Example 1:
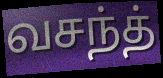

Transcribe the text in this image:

வசந்த்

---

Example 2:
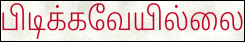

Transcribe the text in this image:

பிடிக்கவேயில்லை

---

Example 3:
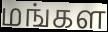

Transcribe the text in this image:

மங்கள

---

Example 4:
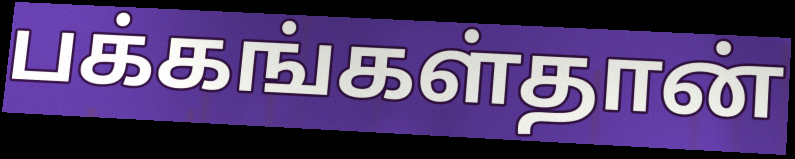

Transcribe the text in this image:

பக்கங்கள்தான்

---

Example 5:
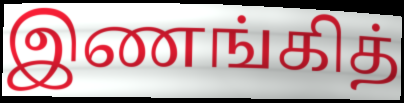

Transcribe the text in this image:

இணங்கித்